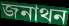
জনাথন